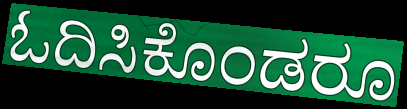
ಓದಿಸಿಕೊಂಡರೂ